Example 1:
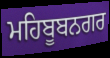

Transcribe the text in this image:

ਮਹਿਬੂਬਨਗਰ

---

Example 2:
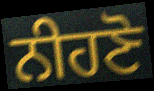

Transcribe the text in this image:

ਨੀਹਣੋ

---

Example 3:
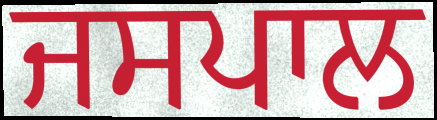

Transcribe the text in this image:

ਜਸਪਾਲ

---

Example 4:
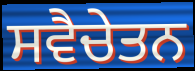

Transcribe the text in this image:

ਸਵੈਚੇਤਨ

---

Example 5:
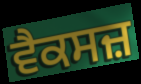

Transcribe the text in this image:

ਵੈਕਸਜ਼